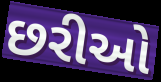
છરીઓ